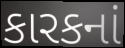
કારકનાં